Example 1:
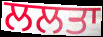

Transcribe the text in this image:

ਲਲਤਾ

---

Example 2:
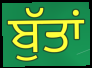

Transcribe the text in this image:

ਬੁੱਤਾਂ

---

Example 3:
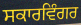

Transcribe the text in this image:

ਸਕਾਰਵਿੰਗਰ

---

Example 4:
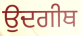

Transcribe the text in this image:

ਉਦਗੀਥ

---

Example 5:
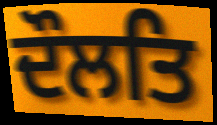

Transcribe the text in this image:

ਦੌਲਤਿ